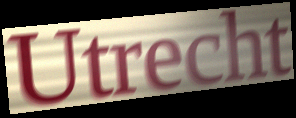
Utrecht